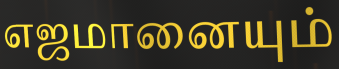
எஜமானையும்